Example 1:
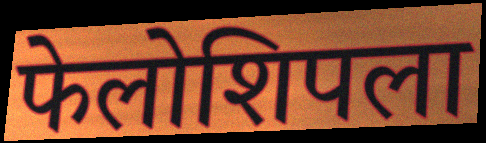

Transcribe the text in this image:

फेलोशिपला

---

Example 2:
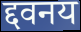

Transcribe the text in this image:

द्दवनय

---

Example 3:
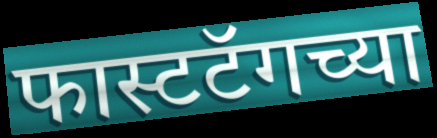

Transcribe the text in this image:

फास्टटॅगच्या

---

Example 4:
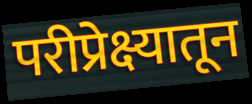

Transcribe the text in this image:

परीप्रेक्ष्यातून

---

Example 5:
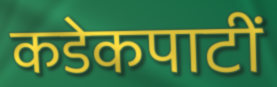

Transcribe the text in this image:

कडेकपाटीं